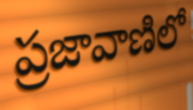
ప్రజావాణిలో